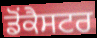
ਡੋਂਕੈਸਟਰ